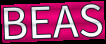
BEAS